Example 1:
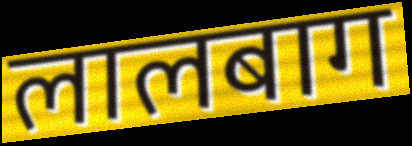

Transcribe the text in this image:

लालबाग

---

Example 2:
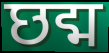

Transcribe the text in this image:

छद्म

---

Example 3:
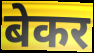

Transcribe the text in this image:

बेकर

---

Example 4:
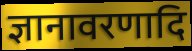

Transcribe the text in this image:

ज्ञानावरणादि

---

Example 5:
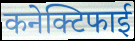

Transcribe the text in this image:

कनेक्टिफाई